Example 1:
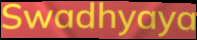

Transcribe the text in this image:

Swadhyaya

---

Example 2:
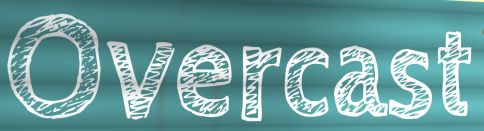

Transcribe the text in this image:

Overcast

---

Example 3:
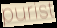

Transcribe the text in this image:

purist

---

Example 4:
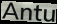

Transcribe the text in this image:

Antu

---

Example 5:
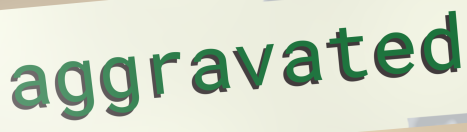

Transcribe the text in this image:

aggravated